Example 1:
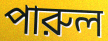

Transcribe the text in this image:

পারুল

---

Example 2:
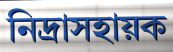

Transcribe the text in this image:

নিদ্রাসহায়ক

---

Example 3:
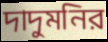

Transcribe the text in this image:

দাদুমনির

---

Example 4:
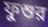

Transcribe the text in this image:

ফুশুর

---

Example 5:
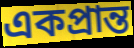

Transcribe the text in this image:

একপ্রান্ত